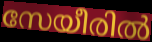
സേയീരിൽ